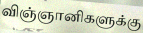
விஞ்ஞானிகளுக்கு